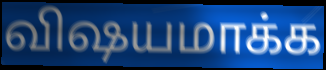
விஷயமாக்க